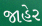
જાહેર